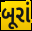
બૂરાં